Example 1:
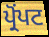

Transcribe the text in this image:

ਪ੍ਰੋਂਪਟ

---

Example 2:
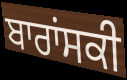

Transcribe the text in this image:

ਬਾਰਾਂਸਕੀ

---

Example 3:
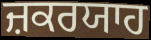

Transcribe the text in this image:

ਜ਼ਕਰਯਾਹ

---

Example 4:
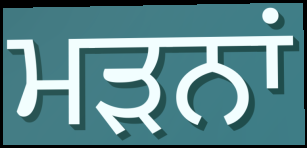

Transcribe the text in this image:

ਮੜਨਾਂ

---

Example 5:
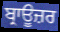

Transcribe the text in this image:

ਬ੍ਰਾਊਜ਼ਰ